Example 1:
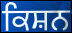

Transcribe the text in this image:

ਕਿਸ਼ਨ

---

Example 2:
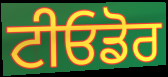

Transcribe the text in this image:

ਟੀਓਡੋਰ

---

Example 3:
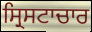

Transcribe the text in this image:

ਸ੍ਰਿਸਟਾਚਾਰ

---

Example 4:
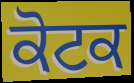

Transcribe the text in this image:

ਕੋਟਕ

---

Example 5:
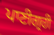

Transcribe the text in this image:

ਪਾਣੀਗ੍ਰਹੀ